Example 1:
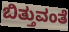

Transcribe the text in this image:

ಬಿತ್ತುವಂತೆ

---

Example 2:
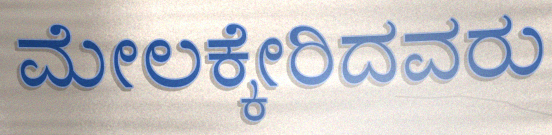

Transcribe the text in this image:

ಮೇಲಕ್ಕೇರಿದವರು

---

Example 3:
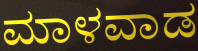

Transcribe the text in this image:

ಮಾಳವಾಡ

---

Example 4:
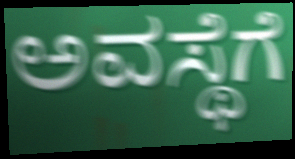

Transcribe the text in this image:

ಅವಸ್ಥೆಗೆ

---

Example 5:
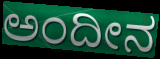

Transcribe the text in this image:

ಅಂದೀನ